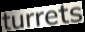
turrets